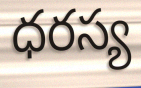
ధరస్య